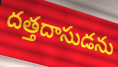
దత్తదాసుడను